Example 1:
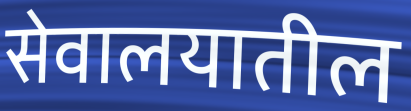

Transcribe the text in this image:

सेवालयातील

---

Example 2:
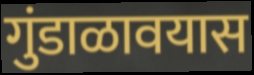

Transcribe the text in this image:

गुंडाळावयास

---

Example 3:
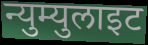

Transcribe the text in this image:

न्युम्युलाइट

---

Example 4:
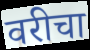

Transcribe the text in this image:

वरीचा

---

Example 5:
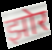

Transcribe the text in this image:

झोर